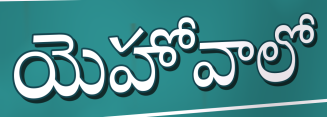
యెహోవాలో